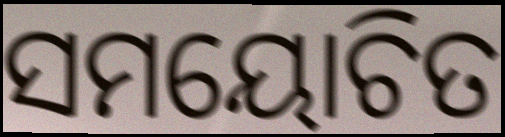
ସମୟୋଚିତ